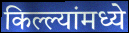
किल्ल्यांमध्ये